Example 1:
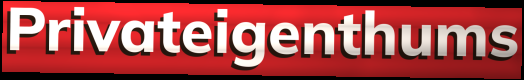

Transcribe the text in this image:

Privateigenthums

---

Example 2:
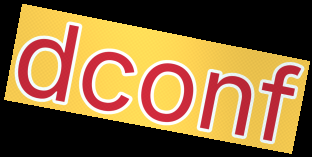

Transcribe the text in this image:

dconf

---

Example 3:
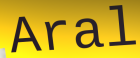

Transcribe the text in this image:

Aral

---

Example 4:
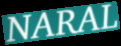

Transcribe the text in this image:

NARAL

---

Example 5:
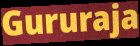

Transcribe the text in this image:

Gururaja